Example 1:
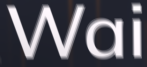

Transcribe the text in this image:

Wai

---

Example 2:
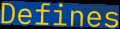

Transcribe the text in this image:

Defines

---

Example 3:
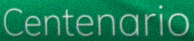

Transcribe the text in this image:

Centenario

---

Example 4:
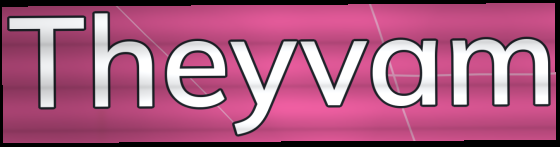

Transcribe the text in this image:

Theyvam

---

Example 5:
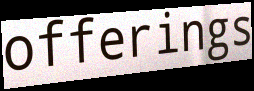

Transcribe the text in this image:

offerings